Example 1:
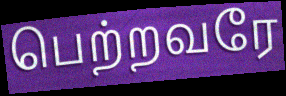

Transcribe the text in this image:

பெற்றவரே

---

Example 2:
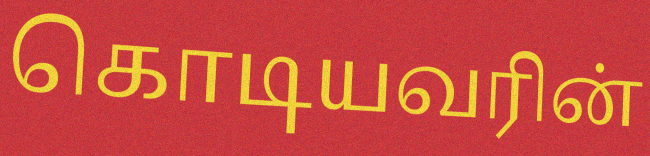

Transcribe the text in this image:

கொடியவரின்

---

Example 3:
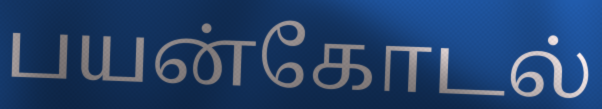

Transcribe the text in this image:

பயன்கோடல்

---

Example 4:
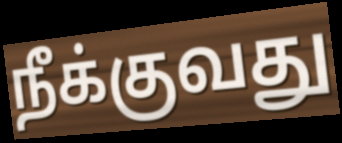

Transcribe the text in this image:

நீக்குவது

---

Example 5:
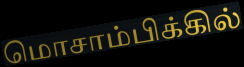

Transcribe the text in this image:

மொசாம்பிக்கில்